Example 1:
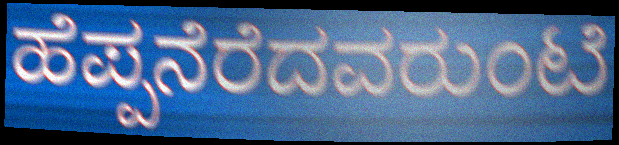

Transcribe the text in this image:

ಹೆಪ್ಪನೆರೆದವರುಂಟೆ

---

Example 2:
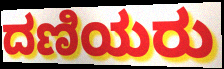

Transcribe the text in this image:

ದಣಿಯರು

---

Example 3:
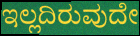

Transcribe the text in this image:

ಇಲ್ಲದಿರುವುದೇ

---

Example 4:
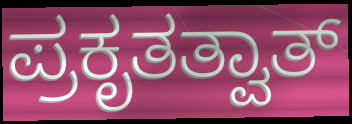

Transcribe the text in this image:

ಪ್ರಕೃತತ್ವಾತ್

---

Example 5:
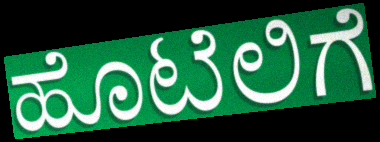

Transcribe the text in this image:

ಹೊಟೆಲಿಗೆ